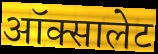
ऑक्सालेट